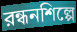
রন্ধনশিল্পে